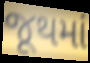
જૂથમાં